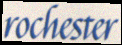
rochester